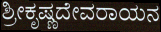
ಶ್ರೀಕೃಷ್ಣದೇವರಾಯನ